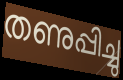
തണുപ്പിച്ചു